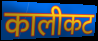
कालीकट